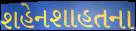
શહેનશાહતના